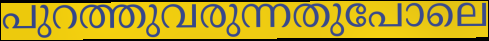
പുറത്തുവരുന്നതുപോലെ